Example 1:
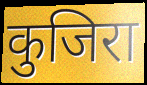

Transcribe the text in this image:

कुजिरा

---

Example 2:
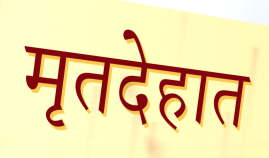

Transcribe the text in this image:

मृतदेहात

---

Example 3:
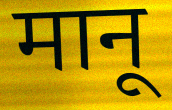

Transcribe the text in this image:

मानू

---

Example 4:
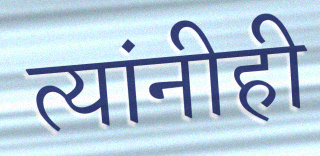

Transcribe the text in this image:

त्यांनीही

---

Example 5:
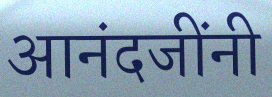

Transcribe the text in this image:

आनंदजींनी